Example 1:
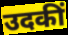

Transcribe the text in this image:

उदकीं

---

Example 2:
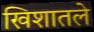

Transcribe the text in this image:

खिशातले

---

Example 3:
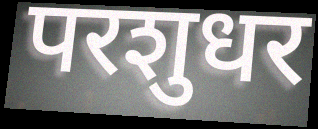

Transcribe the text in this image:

परशुधर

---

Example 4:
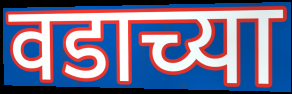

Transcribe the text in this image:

वडाच्या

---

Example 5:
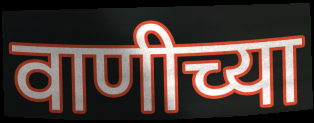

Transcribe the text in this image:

वाणीच्या